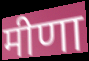
मीणा